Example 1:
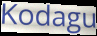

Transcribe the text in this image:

Kodagu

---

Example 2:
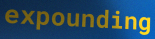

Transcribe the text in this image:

expounding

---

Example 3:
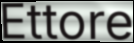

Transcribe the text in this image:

Ettore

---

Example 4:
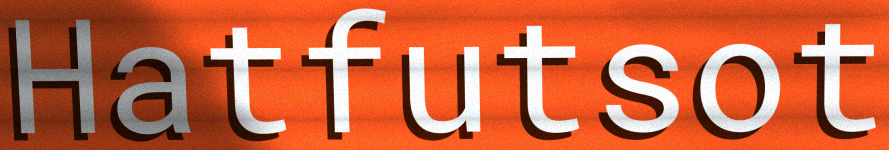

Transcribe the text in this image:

Hatfutsot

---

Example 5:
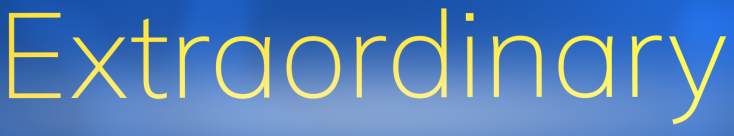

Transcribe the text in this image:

Extraordinary